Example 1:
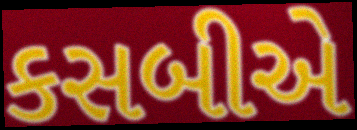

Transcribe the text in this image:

કસબીએ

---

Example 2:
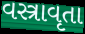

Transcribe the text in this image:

વસ્ત્રાવૃતા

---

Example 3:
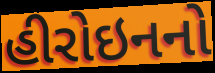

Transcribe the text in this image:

હીરોઇનનો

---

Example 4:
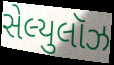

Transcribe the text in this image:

સેલ્યુલૉઝ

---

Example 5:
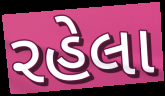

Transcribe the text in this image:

રહેલા